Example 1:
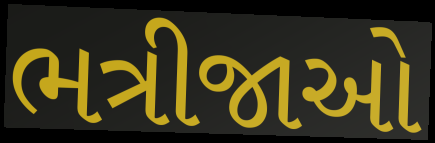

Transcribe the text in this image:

ભત્રીજાઓ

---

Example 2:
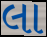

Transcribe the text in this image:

લા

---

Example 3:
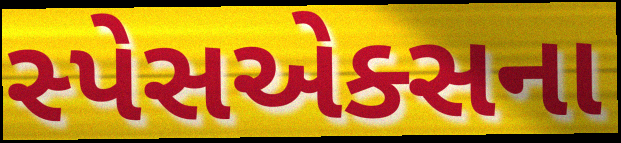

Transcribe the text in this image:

સ્પેસએક્સના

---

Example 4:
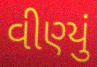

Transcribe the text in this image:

વીણ્યું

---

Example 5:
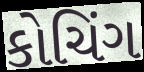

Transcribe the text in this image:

કોચિંગ